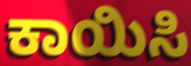
ಕಾಯಿಸಿ